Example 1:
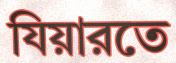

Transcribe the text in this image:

যিয়ারতে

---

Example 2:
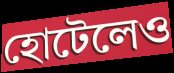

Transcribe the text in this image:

হোটেলেও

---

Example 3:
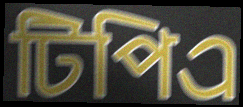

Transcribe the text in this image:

টিপিএ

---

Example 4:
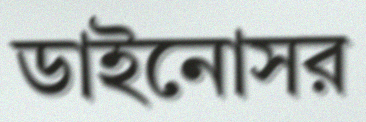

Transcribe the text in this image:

ডাইনোসর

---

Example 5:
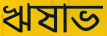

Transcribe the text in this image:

ঋষাভ